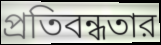
প্রতিবন্ধতার